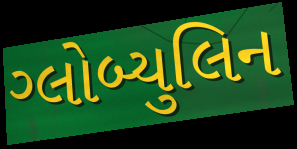
ગ્લોબ્યુલિન